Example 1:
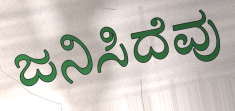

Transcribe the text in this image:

ಜನಿಸಿದೆವು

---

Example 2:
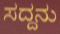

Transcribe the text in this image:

ಸದ್ದನು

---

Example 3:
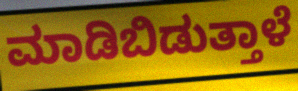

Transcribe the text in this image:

ಮಾಡಿಬಿಡುತ್ತಾಳೆ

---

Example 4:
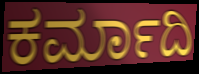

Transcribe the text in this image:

ಕರ್ಮಾದಿ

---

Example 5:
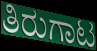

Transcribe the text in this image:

ತಿರುಗಾಟ